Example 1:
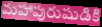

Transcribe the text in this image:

మహాపురుషుడికి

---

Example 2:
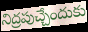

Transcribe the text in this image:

నిద్రపుచ్చేందుకు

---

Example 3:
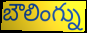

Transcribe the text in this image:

బౌలింగ్ను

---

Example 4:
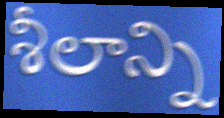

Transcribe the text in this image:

శీలాన్ని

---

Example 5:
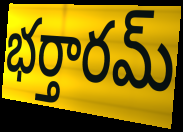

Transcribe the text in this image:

భర్తారమ్